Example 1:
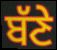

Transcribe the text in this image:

ਬੱਣੇ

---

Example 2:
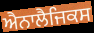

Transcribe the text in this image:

ਐਨਾਲੈਜਿਕਸ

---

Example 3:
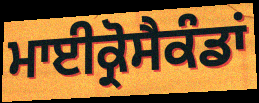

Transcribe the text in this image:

ਮਾਈਕ੍ਰੋਸੈਕੰਡਾਂ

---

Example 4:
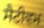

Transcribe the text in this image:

ਸੈਟੀਵਮ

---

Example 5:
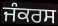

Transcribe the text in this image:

ਜੰਕਰਸ